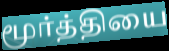
மூர்த்தியை